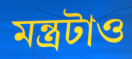
মন্ত্রটাও